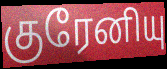
குரேனியு